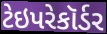
ટેઇપરેકૉર્ડર